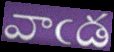
వాఁడ